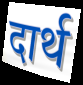
दार्थ